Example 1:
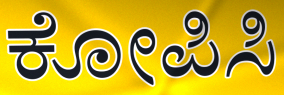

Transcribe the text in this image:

ಕೋಪಿಸಿ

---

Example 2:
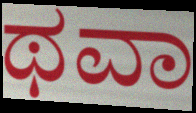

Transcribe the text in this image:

ಥವಾ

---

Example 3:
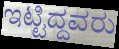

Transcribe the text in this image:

ಇಟ್ಟಿದ್ದವರು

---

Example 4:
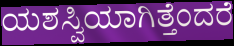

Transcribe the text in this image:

ಯಶಸ್ವಿಯಾಗಿತ್ತೆಂದರೆ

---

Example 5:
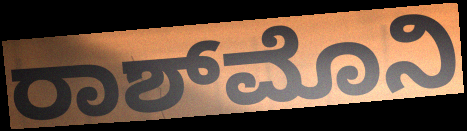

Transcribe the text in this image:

ರಾಶ್‌ಮೊನಿ